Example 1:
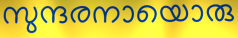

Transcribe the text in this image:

സുന്ദരനായൊരു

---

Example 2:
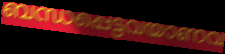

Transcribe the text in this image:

ബന്ധപ്പെട്ടവയാണവ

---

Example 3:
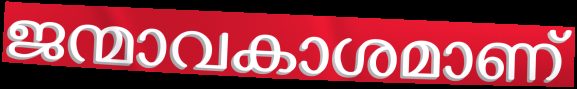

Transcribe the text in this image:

ജന്മാവകാശമാണ്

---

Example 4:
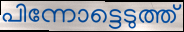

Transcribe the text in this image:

പിന്നോട്ടെടുത്ത്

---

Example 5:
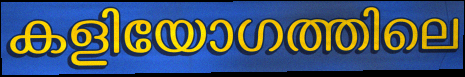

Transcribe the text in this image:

കളിയോഗത്തിലെ